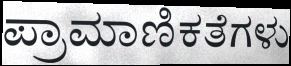
ಪ್ರಾಮಾಣಿಕತೆಗಳು